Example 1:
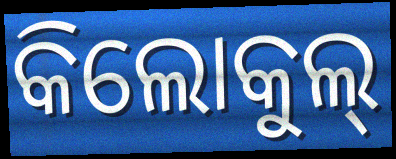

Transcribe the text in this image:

କିଲୋକୁଲ୍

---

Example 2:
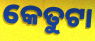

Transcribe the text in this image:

କେତୁଟା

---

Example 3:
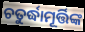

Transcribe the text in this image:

ଚତୁର୍ଦ୍ଧାମୂର୍ତ୍ତିଙ୍କ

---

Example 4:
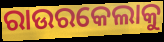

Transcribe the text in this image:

ରାଉରକେଲାକୁ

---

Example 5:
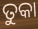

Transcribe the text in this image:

ତୁକା